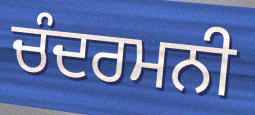
ਚੰਦਰਮਨੀ